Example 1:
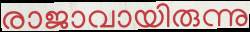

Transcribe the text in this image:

രാജാവായിരുന്നു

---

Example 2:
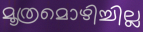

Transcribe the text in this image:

മൂത്രമൊഴിച്ചില്ല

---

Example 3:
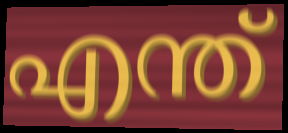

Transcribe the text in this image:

എന്ത്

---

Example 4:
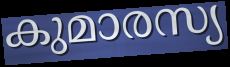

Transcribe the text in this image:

കുമാരസ്യ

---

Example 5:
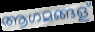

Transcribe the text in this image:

ആഗമങ്ങള്